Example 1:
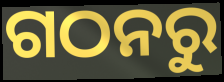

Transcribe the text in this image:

ଗଠନରୁ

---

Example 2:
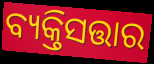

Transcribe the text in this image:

ବ୍ୟକ୍ତିସତ୍ତାର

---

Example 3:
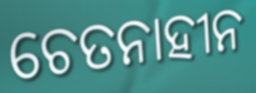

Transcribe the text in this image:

ଚେତନାହୀନ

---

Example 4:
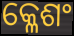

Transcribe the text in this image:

କ୍ଳେଶଂ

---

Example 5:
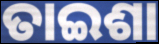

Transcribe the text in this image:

ତାଇଶା